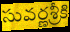
సువర్ణశ్రీకి